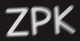
ZPK